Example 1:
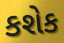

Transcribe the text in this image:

કશેક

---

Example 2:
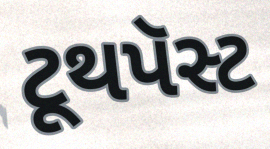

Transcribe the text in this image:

ટૂથપૅસ્ટ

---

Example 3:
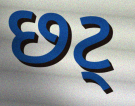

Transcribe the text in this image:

છટ્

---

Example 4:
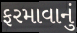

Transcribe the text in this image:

ફરમાવાનું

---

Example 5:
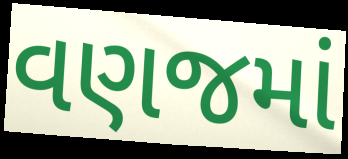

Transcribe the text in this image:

વણજમાં